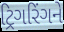
ટ્રિગરિંગને